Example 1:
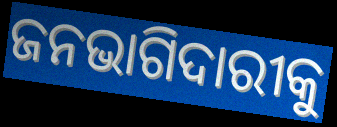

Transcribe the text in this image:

ଜନଭାଗିଦାରୀକୁ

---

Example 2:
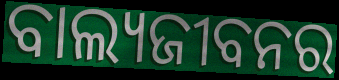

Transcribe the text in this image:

ବାଲ୍ୟଜୀବନର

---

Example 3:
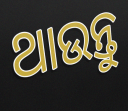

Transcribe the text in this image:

ଥାଉନ୍ତୁ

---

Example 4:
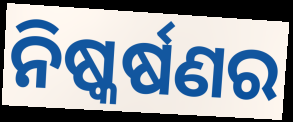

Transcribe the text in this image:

ନିଷ୍କର୍ଷଣର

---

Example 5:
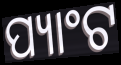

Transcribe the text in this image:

ପ୍ୟାଂଟ